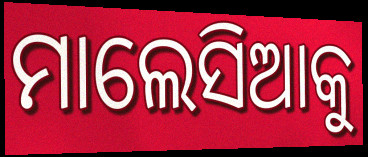
ମାଲେସିଆକୁ